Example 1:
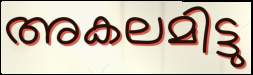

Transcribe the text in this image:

അകലമിട്ടു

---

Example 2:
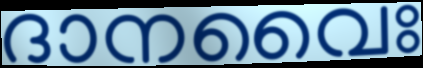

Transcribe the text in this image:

ദാനവൈഃ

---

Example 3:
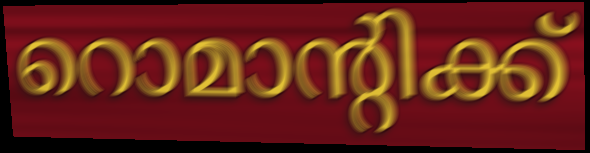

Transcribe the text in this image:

റൊമാന്റിക്ക്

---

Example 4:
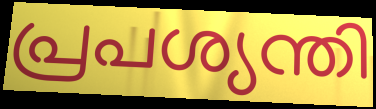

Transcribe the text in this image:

പ്രപശ്യന്തി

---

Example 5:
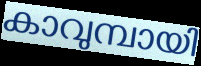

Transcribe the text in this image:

കാവുമ്പായി